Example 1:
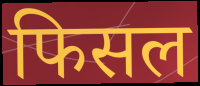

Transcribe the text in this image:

फिसल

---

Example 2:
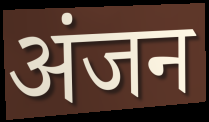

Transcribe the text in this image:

अंजन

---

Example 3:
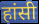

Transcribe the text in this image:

हांसी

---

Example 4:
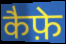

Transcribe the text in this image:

कैफ़े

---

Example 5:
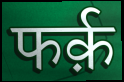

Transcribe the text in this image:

फर्क़